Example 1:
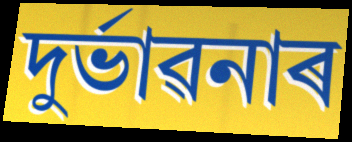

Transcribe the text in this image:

দুৰ্ভাৱনাৰ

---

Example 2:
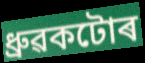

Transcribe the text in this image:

ধ্ৰুৱকটোৰ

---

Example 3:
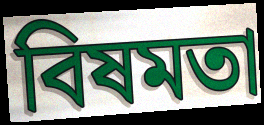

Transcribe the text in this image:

বিষমতা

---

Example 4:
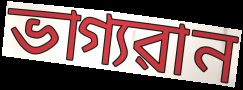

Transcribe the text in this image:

ভাগ্যৱান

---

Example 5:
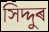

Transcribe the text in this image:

সিদ্দুৰ